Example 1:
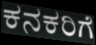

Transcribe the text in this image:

ಕನಕರಿಗೆ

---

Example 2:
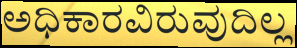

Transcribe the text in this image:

ಅಧಿಕಾರವಿರುವುದಿಲ್ಲ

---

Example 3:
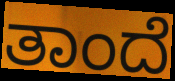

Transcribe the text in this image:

ತಾಂದೆ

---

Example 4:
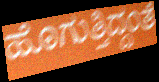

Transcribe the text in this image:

ಹೊಗುತ್ತಿದ್ದಂತೆ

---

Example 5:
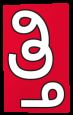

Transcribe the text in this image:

ತ್ತಿ